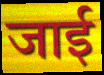
जाई